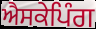
ਐਸਕੇਪਿੰਗ